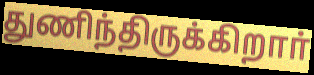
துணிந்திருக்கிறார்